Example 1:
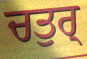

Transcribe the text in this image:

ਚਤੁਰ੍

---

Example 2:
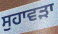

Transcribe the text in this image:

ਸੁਹਾਵੜਾ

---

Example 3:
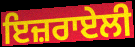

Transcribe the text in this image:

ਇਜ਼ਰਾਏਲੀ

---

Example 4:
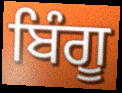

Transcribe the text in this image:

ਬਿੰਗੂ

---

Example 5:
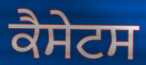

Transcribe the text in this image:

ਕੈਸੇਟਸ